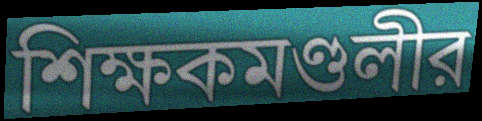
শিক্ষকমণ্ডলীর